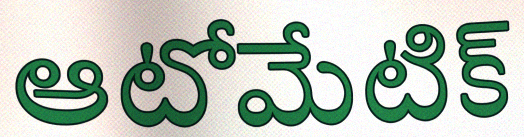
ఆటోమేటిక్